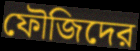
ফৌজিদের